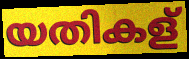
യതികള്